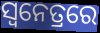
ସ୍ୱନେତ୍ରରେ